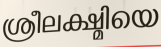
ശ്രീലക്ഷ്മിയെ